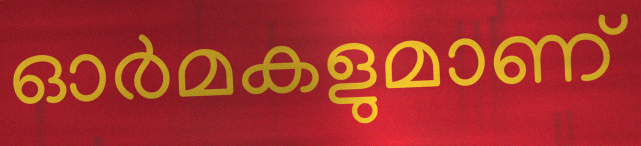
ഓർമകളുമാണ്